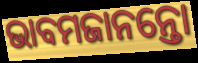
ଭାବମଜାନନ୍ତୋ